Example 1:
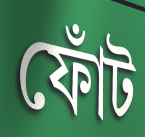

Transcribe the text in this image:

ফোঁট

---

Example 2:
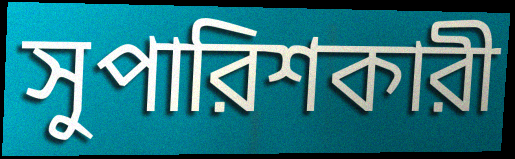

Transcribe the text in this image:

সুপারিশকারী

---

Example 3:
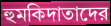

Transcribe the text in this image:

হুমকিদাতাদের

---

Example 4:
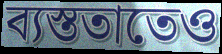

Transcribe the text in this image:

ব্যস্ততাতেও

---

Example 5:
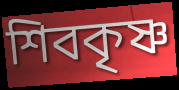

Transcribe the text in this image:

শিবকৃষ্ণ